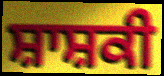
ਸ਼ਾਸ਼ਕੀ